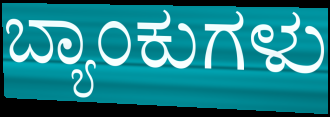
ಬ್ಯಾಂಕುಗಳು